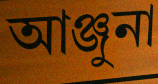
আঞ্জুনা